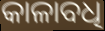
କାଳାବଧି